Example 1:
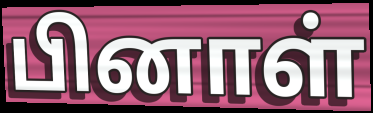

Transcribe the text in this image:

பினாள்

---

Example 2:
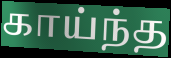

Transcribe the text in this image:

காய்ந்த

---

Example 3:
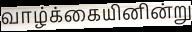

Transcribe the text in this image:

வாழ்க்கையினின்று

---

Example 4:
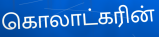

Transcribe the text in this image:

கொலாட்கரின்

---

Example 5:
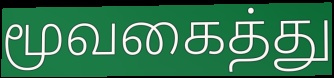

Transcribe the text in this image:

மூவகைத்து